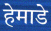
हेमाडे